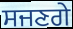
ਸਜਣਗੇ